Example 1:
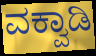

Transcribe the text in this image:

ವಕ್ವಾಡಿ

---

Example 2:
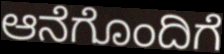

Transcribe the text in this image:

ಆನೆಗೊಂದಿಗೆ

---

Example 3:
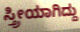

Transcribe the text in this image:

ಸ್ತ್ರೀಯಾಗಿದ್ದು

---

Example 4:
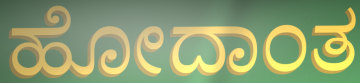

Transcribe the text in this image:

ಹೋದಾಂತ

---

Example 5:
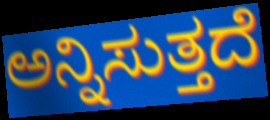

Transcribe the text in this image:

ಅನ್ನಿಸುತ್ತದೆ